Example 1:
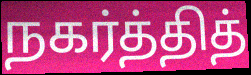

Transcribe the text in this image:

நகர்த்தித்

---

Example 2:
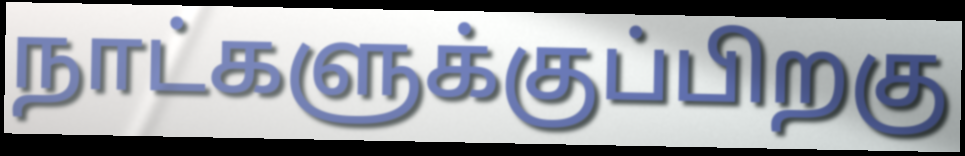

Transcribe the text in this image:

நாட்களுக்குப்பிறகு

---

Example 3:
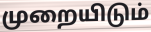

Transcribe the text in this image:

முறையிடும்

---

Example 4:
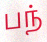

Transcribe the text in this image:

பந்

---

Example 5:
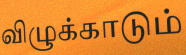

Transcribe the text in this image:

விழுக்காடும்